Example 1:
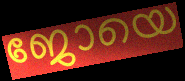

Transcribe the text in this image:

ജോയെ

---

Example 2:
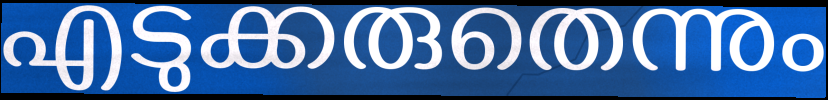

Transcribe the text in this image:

എടുക്കരുതെന്നും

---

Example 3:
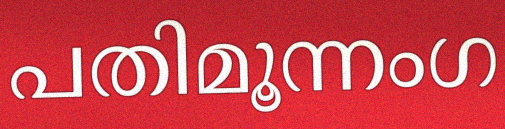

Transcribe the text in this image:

പതിമൂന്നംഗ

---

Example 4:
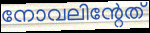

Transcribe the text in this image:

നോവലിന്റേത്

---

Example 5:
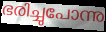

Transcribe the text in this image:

ഭരിച്ചുപോന്നു